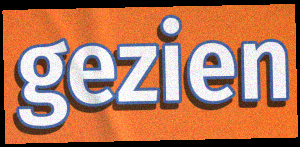
gezien